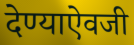
देण्याऐवजी